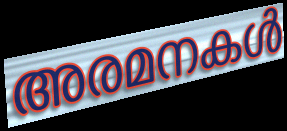
അരമനകൾ